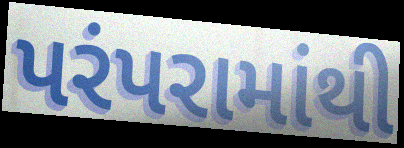
પરંપરામાંથી